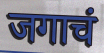
जगाचं